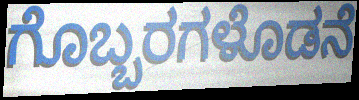
ಗೊಬ್ಬರಗಳೊಡನೆ